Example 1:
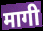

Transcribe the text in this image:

मागी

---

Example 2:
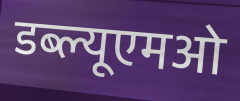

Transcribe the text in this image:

डब्ल्यूएमओ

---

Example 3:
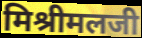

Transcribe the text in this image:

मिश्रीमलजी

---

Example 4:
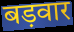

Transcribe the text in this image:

बड़वार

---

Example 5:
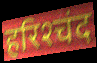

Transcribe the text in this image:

हरिश्चंद